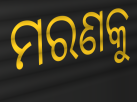
ମରଣକୁ